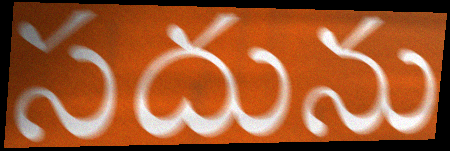
సదును